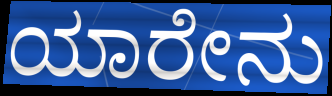
ಯಾರೇನು